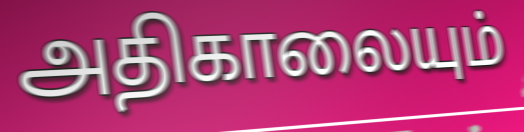
அதிகாலையும்